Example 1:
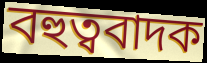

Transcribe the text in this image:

বহুত্ববাদক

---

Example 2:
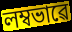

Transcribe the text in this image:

লম্বভাৱে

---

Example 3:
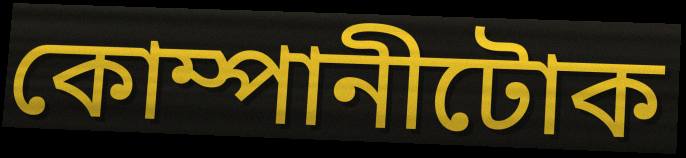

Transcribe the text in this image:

কোম্পানীটোক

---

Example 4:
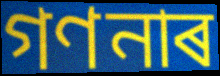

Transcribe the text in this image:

গণনাৰ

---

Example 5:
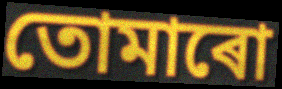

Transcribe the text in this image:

তোমাৰো